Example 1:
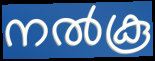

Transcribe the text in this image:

നൽകൂ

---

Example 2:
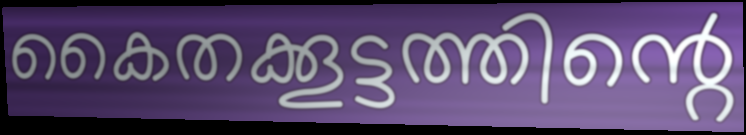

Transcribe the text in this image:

കൈതക്കൂട്ടത്തിന്റെ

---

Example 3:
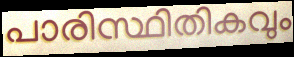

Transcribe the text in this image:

പാരിസ്ഥിതികവും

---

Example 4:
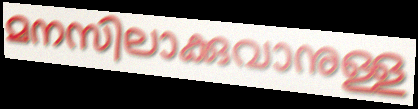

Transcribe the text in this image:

മനസിലാക്കുവാനുള്ള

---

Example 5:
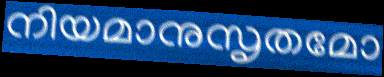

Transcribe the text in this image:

നിയമാനുസൃതമോ